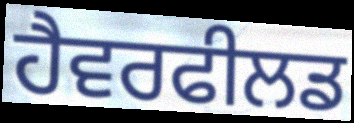
ਹੈਵਰਫੀਲਡ